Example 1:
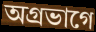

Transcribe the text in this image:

অগ্রভাগে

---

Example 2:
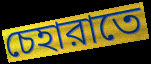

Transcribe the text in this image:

চেহারাতে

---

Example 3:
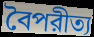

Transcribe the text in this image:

বৈপরীত্য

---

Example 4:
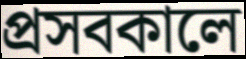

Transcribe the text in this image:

প্রসবকালে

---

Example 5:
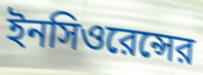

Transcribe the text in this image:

ইনসিওরেন্সের